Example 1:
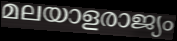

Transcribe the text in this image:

മലയാളരാജ്യം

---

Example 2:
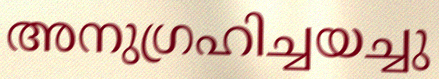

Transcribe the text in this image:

അനുഗ്രഹിച്ചയച്ചു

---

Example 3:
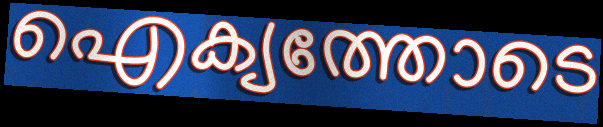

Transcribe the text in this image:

ഐക്യത്തോടെ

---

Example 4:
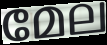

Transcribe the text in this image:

മേല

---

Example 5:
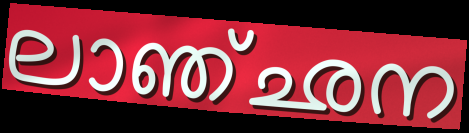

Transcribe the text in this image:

ലാഞ്ഛന